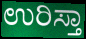
ಉರಿಸ್ತಾ